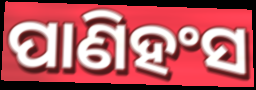
ପାଣିହଂସ